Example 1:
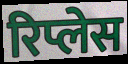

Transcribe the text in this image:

रिप्लेस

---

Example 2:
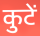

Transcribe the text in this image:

कुटें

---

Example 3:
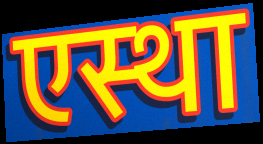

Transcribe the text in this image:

एस्था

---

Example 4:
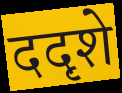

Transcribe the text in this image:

ददृशे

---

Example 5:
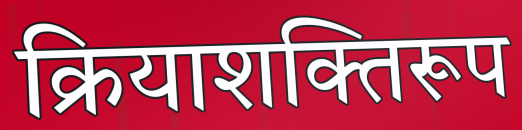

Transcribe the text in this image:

क्रियाशक्तिरूप